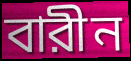
বারীন